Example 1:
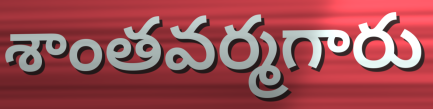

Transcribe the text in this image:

శాంతవర్మగారు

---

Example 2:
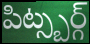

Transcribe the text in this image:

పిట్స్బర్గ్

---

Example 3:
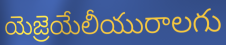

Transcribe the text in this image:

యెజ్రెయేలీయురాలగు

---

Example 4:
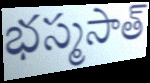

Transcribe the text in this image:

భస్మసాత్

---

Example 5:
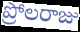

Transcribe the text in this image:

ప్రోలరాజు